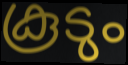
കൂടും